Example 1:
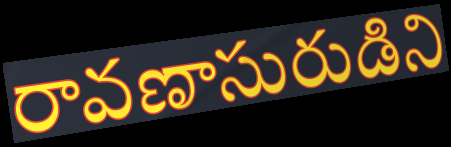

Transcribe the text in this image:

రావణాసురుడిని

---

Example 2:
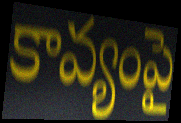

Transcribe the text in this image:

కావ్యంపై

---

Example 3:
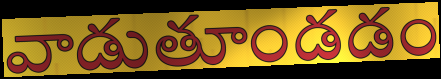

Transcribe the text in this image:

వాడుతూండడం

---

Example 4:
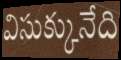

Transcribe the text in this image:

విసుక్కునేది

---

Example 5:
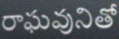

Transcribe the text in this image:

రాఘవునితో